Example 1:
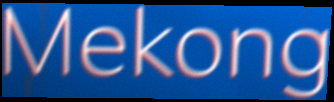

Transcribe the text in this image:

Mekong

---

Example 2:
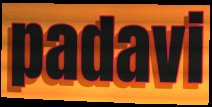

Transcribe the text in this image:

padavi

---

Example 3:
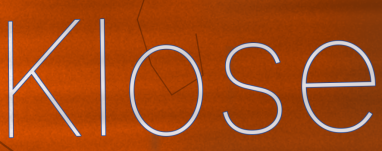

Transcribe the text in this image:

Klose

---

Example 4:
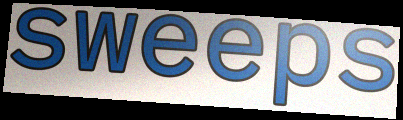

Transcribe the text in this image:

sweeps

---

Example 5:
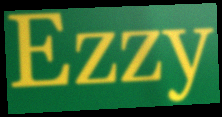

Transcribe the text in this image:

Ezzy